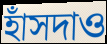
হাঁসদাও